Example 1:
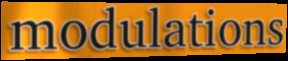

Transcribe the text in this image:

modulations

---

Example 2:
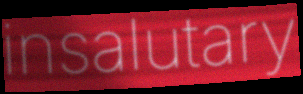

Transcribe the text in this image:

insalutary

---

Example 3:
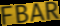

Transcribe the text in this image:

FBAR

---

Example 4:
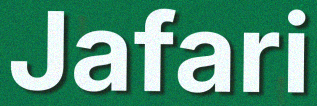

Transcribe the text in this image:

Jafari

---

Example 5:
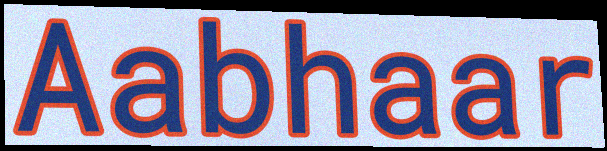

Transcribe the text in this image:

Aabhaar